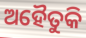
ଅହୈତୁକି